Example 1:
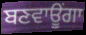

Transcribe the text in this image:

ਬਣਵਾਊਂਗਾ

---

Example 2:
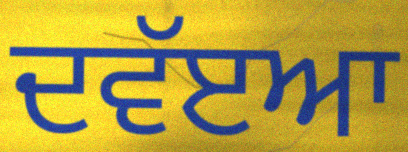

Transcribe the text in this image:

ਦਵੱੲਆ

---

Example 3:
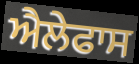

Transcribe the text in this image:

ਐਲੇਫਾਸ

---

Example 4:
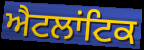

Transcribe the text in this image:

ਐਟਲਾਂਟਿਕ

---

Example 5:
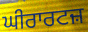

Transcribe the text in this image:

ਘੀਰਾਰਟਜ਼